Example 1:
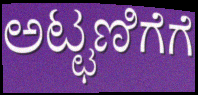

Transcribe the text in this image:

ಅಟ್ಟಣಿಗೆಗೆ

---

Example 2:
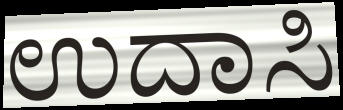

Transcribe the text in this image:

ಉದಾಸಿ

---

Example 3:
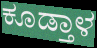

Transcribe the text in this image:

ಕೂಡ್ತಾಳ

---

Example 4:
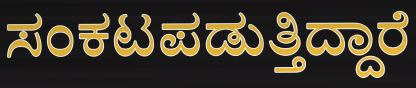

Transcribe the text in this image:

ಸಂಕಟಪಡುತ್ತಿದ್ದಾರೆ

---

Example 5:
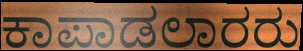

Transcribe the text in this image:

ಕಾಪಾಡಲಾರರು